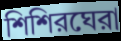
শিশিরঘেরা